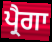
ਪ੍ਰੈਗਾ